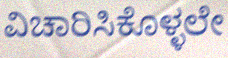
ವಿಚಾರಿಸಿಕೊಳ್ಳಲೇ